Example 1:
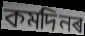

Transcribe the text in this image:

কৰ্মদিনৰ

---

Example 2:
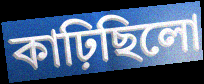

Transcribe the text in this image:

কাঢ়িছিলো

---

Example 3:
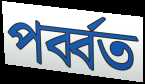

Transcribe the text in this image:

পৰ্ব্বত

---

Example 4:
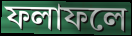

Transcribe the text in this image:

ফলাফলে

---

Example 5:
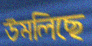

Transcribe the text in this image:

উমলিছে